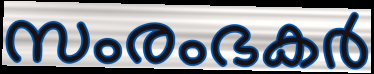
സംരംഭകർ